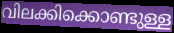
വിലക്കിക്കൊണ്ടുള്ള